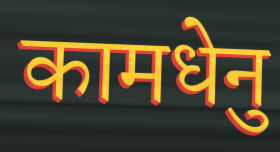
कामधेनु